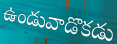
ఉండువాడొకడు